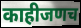
काहीजणच